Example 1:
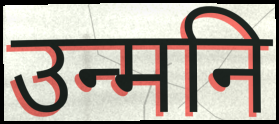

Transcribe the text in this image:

उन्मनि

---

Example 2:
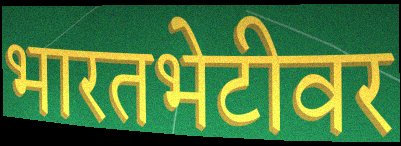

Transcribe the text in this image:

भारतभेटीवर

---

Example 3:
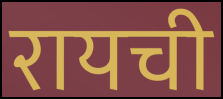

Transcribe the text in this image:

रायची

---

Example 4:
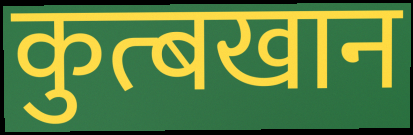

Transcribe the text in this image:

कुत्बखान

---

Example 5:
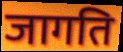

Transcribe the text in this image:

जागति